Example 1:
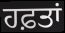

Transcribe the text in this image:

ਹਫ਼ਤਾਂ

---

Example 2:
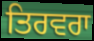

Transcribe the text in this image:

ਤਿਰਵਰਾ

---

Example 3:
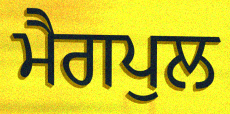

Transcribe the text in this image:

ਮੈਗਪੁਲ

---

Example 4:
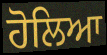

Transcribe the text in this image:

ਹੋਲਿਆ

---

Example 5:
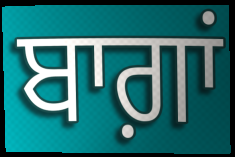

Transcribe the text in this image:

ਬਾਗ਼ਾਂ